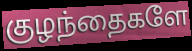
குழந்தைகளே